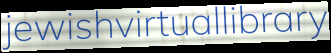
jewishvirtuallibrary